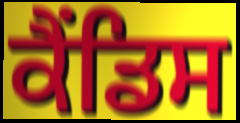
ਕੈਂਡਿਸ